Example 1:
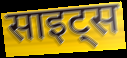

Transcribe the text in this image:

साइट्स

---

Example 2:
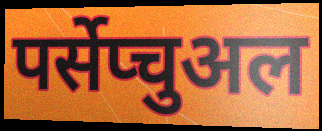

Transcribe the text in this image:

पर्सेप्चुअल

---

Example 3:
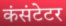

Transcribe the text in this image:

कंसंटेटर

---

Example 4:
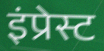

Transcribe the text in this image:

इंप्रेस्ट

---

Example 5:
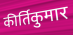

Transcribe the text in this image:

कीर्तिकुमार